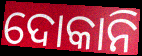
ଦୋକାନି